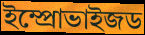
ইম্প্রোভাইজড